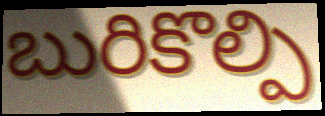
బురికొల్పి